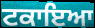
ਟਕਾਇਆ